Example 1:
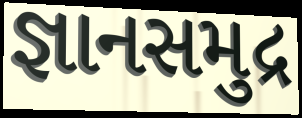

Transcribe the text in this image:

જ્ઞાનસમુદ્ર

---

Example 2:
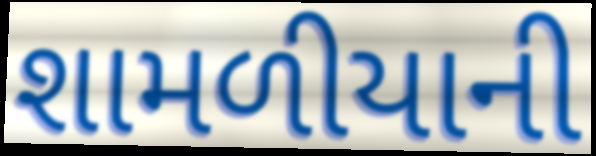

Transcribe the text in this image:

શામળીયાની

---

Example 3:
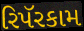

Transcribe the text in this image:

રિપૅરકામ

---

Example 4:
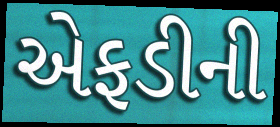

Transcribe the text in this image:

એફડીની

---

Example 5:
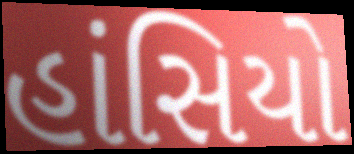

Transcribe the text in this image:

હાંસિયો